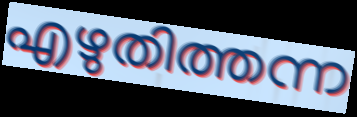
എഴുതിത്തന്ന